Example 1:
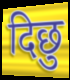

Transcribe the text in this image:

दिछु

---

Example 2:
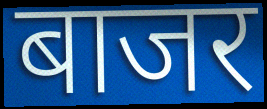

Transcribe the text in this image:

बाजर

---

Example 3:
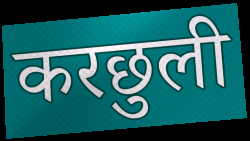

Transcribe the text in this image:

करछुली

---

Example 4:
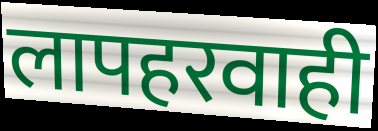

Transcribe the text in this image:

लापहरवाही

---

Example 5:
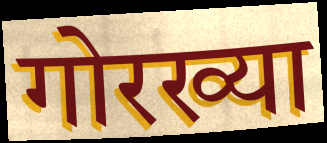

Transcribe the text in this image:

गोरख्या